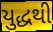
યુદ્ધથી